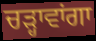
ਚੜ੍ਹਾਵਾਂਗਾ